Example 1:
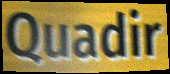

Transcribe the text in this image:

Quadir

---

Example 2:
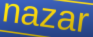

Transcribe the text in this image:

nazar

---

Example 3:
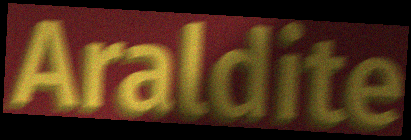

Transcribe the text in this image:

Araldite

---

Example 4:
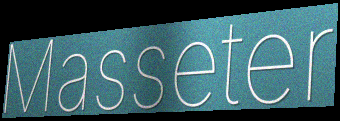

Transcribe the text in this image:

Masseter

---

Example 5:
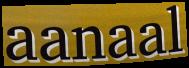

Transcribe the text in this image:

aanaal